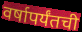
वर्षापर्यंतची